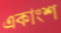
একাংশ